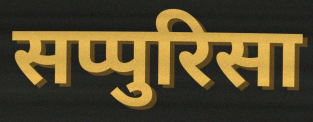
सप्पुरिसा